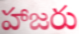
హాజరు